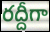
రద్దీగా